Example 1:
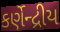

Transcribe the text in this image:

કર્ણેન્દ્રીય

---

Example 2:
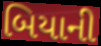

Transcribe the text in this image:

બિયાની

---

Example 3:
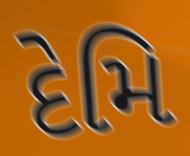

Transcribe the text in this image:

દેમિ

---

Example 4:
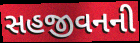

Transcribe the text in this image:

સહજીવનની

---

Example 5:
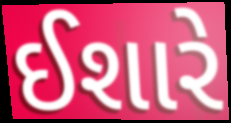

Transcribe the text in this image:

ઈશારે